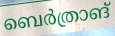
ബെർത്രാങ്